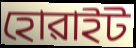
হোৱাইট